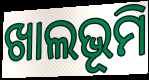
ଖାଲଭୂମି